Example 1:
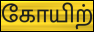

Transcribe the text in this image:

கோயிற்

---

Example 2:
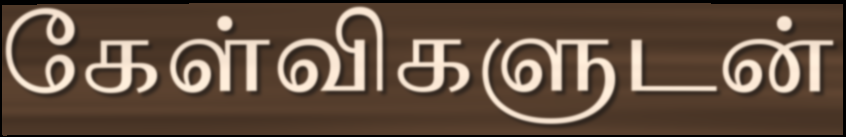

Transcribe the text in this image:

கேள்விகளுடன்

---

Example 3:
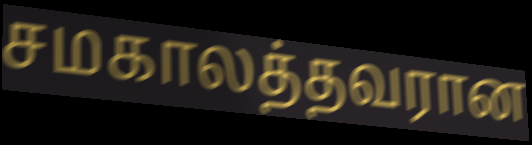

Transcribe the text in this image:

சமகாலத்தவரான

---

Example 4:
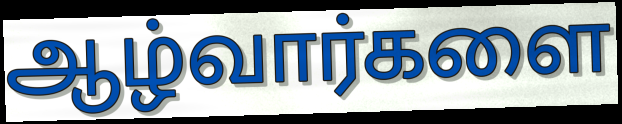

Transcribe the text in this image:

ஆழ்வார்களை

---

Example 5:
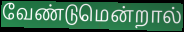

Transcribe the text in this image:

வேண்டுமென்றால்